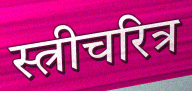
स्त्रीचरित्र